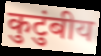
कुटुंबीय